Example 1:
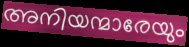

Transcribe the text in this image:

അനിയന്മാരേയും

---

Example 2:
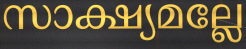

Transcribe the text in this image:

സാക്ഷ്യമല്ലേ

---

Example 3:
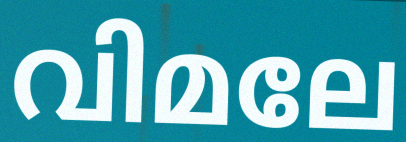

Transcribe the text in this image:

വിമലേ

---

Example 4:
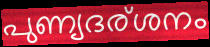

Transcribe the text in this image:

പുണ്യദര്ശനം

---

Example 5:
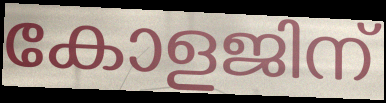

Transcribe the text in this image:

കോളജിന്